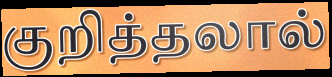
குறித்தலால்